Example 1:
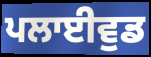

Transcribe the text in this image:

ਪਲਾਈਵੁਡ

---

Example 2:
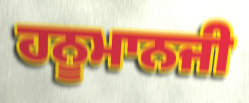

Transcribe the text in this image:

ਹਨੂਮਾਨਜੀ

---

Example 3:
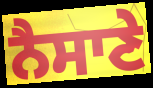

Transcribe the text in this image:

ਨੈਸਾਣੇ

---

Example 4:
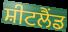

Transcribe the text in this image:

ਸ਼ੀਟਲੈਂਡ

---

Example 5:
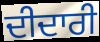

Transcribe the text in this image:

ਦੀਦਾਰੀ